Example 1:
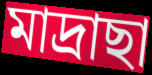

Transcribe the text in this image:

মাদ্ৰাছা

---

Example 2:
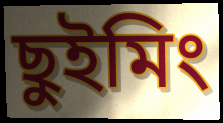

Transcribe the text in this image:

ছুইমিং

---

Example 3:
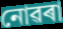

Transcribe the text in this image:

নোৱৰা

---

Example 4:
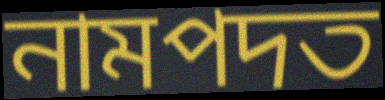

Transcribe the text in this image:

নামপদত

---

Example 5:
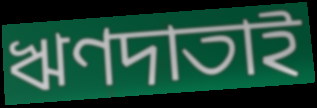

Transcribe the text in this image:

ঋণদাতাই